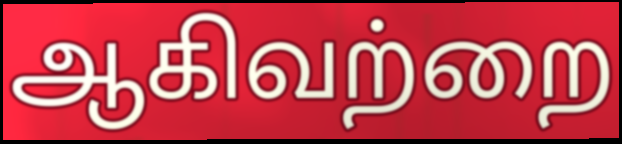
ஆகிவற்றை